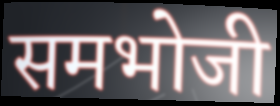
समभोजी